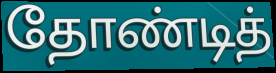
தோண்டித்